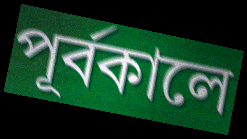
পূর্বকালে